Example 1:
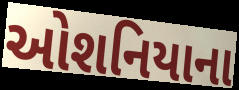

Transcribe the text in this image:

ઓશનિયાના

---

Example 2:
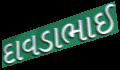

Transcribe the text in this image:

દાવડાભાઈ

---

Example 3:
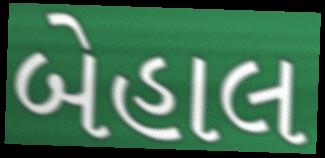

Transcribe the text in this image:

બેહાલ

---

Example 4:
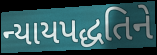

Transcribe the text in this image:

ન્યાયપદ્ધતિને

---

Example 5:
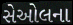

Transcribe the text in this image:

સેઓલના